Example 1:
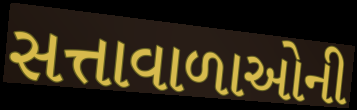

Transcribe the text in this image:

સત્તાવાળાઓની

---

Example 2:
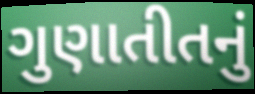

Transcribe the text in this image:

ગુણાતીતનું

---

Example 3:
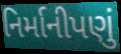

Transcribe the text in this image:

નિર્માનીપણું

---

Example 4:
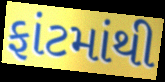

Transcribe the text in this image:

ફાંટમાંથી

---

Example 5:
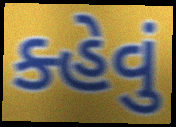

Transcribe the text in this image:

ક્હેવું